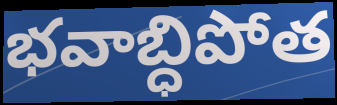
భవాబ్ధిపోత